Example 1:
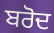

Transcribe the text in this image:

ਬਰੋਦ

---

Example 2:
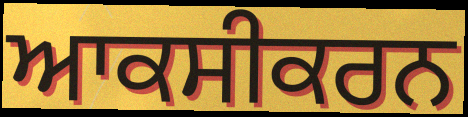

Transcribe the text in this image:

ਆਕਸੀਕਰਨ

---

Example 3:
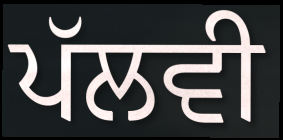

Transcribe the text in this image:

ਪੱਲਵੀ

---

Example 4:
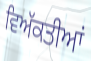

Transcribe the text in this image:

ਵਿਅੱਕਤੀਆਂ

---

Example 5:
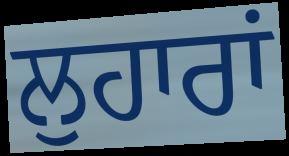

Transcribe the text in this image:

ਲੁਹਾਰਾਂ